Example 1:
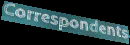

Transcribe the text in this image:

Correspondents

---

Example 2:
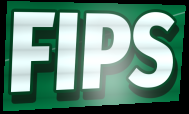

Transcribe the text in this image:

FIPS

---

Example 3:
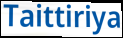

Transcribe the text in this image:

Taittiriya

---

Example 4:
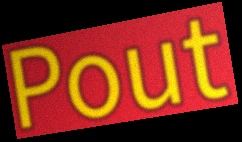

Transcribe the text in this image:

Pout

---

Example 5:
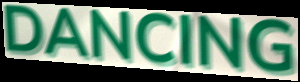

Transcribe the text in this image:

DANCING